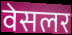
वेसलर